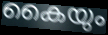
കൈയും